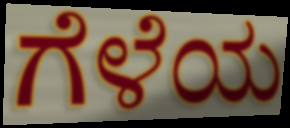
ಗೆಳೆಯ